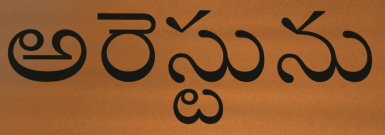
అరెస్టును